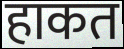
हाकत